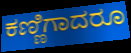
ಕಣ್ಣಿಗಾದರೂ